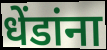
धेंडांना